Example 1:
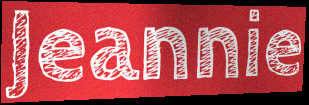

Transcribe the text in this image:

Jeannie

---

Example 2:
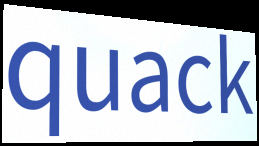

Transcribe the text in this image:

quack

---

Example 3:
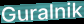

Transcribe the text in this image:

Guralnik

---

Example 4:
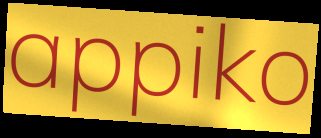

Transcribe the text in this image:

appiko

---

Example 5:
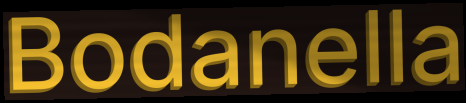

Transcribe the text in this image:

Bodanella